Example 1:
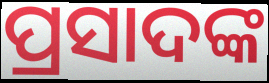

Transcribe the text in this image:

ପ୍ରସାଦଙ୍କ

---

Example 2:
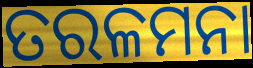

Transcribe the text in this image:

ତରଳମନା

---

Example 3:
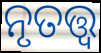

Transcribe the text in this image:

ନୃତତ୍ତ୍ୱ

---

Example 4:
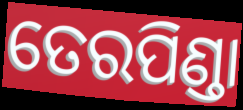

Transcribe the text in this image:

ତେରପିଣ୍ଡା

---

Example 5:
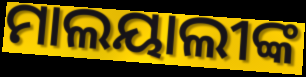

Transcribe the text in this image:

ମାଲୟାଲୀଙ୍କ